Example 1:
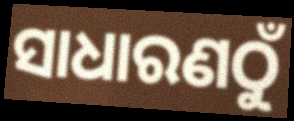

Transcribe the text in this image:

ସାଧାରଣଠୁଁ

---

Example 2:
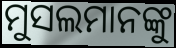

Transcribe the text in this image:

ମୁସଲମାନଙ୍କୁ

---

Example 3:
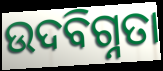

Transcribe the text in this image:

ଉଦବିଗ୍ନତା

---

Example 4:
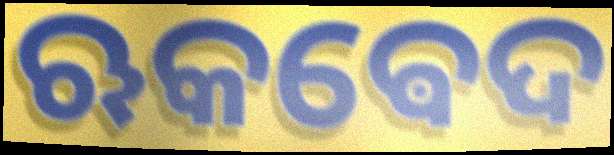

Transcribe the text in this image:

ଋକଵେଦ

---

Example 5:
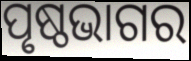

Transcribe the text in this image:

ପୃଷ୍ଠଭାଗର